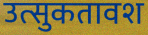
उत्सुकतावश